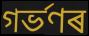
গৰ্ভণৰ